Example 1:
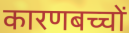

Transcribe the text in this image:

कारणबच्चों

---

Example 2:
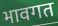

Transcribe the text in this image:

भावगत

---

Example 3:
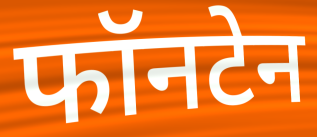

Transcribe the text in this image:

फॉनटेन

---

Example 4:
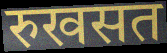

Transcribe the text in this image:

रुखसत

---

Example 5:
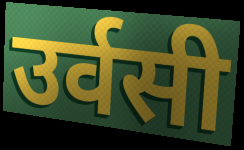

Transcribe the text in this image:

उर्वसी